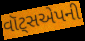
વૉટ્સએપની